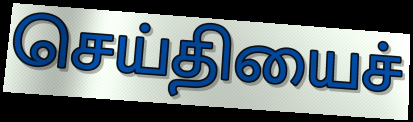
செய்தியைச்